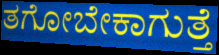
ತಗೋಬೇಕಾಗುತ್ತೆ